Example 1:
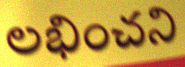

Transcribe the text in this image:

లభించని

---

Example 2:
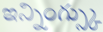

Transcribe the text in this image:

ఇన్నింగ్స్కు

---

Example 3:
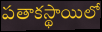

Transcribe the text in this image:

పతాకస్థాయిలో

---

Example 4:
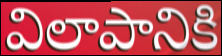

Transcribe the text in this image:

విలాపానికి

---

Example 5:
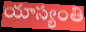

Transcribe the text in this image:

యాస్యంతి